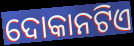
ଦୋକାନଟିଏ